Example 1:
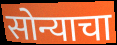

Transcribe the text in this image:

सोन्याचा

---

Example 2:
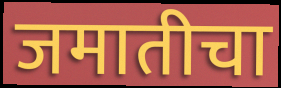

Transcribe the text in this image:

जमातीचा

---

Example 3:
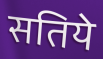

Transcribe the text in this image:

सतिये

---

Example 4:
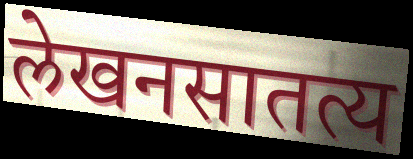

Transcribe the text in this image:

लेखनसातत्य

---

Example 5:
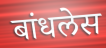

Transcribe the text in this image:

बांधलेस